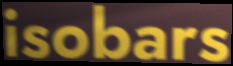
isobars